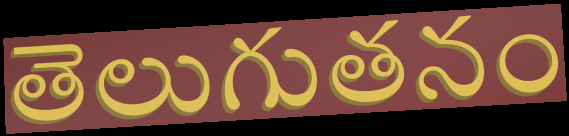
తెలుగుతనం